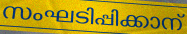
സംഘടിപ്പിക്കാന്